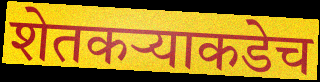
शेतकऱ्याकडेच